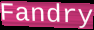
Fandry